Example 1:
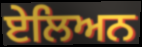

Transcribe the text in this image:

ਏਲਿਅਨ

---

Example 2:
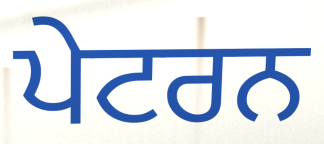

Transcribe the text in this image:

ਪੇਟਰਨ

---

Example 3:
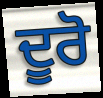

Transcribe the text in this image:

ਦੂਰੋ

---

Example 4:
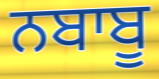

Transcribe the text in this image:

ਨਬਾਬੂ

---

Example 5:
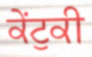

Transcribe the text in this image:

ਕੇਂਟੁਕੀ